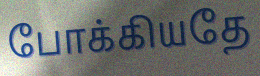
போக்கியதே